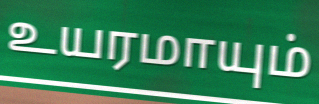
உயரமாயும்